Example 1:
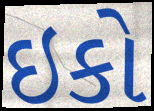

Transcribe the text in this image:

ઇકો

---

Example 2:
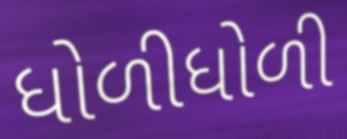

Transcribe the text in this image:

ધોળીધોળી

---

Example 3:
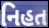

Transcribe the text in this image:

નિહત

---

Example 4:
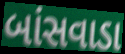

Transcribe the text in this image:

બાંસવાડા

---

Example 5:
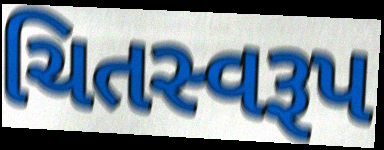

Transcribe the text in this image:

ચિતસ્વરૂપ